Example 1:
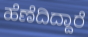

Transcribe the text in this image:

ಹೆಣೆದಿದ್ದಾರೆ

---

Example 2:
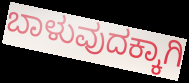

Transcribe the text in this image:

ಬಾಳುವುದಕ್ಕಾಗಿ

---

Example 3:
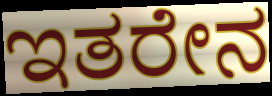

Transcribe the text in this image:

ಇತರೇನ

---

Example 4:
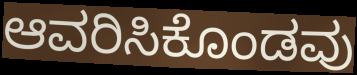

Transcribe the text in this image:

ಆವರಿಸಿಕೊಂಡವು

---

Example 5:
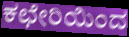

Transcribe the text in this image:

ಕಛೇರಿಯಿಂದ